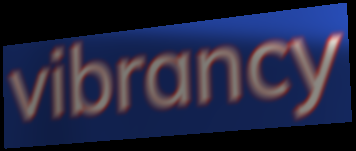
vibrancy